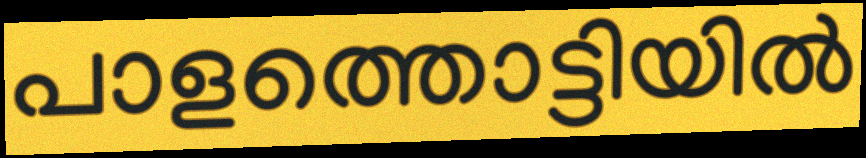
പാളത്തൊട്ടിയിൽ